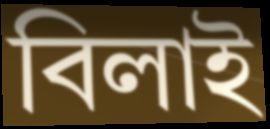
বিলাই